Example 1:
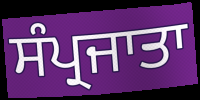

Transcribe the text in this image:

ਸੰਪ੍ਰਜਾਤਾ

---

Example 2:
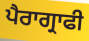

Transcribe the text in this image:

ਪੈਰਾਗ੍ਰਾਫੀ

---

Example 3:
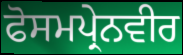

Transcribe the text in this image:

ਫੋਸਮਪ੍ਰੇਨਵੀਰ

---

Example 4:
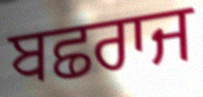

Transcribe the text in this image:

ਬਛਰਾਜ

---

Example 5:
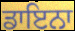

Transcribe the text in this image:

ਡਾਇਨਾ